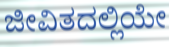
ಜೀವಿತದಲ್ಲಿಯೇ